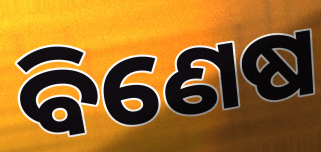
ବିଣେଷ